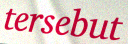
tersebut